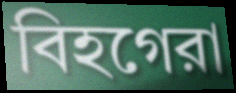
বিহগেরা